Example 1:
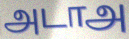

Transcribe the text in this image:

அடாஅ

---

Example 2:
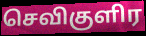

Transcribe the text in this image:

செவிகுளிர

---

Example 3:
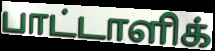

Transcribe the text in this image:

பாட்டாளிக்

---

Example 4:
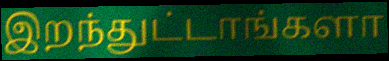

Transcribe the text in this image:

இறந்துட்டாங்களா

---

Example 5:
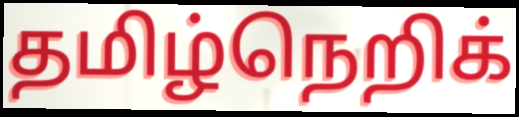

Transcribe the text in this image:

தமிழ்நெறிக்